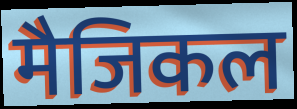
मैजिकल